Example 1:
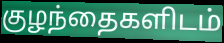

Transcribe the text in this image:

குழந்தைகளிடம்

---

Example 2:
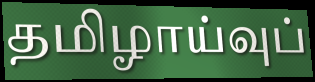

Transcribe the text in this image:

தமிழாய்வுப்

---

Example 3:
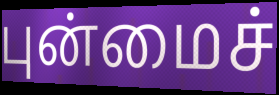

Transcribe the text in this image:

புன்மைச்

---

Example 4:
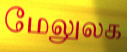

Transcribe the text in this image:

மேலுலக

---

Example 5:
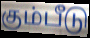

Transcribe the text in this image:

கும்பீடு